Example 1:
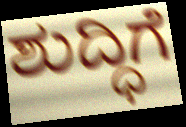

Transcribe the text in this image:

ಶುದ್ಧಿಗೆ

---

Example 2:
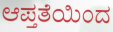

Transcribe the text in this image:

ಆಪ್ತತೆಯಿಂದ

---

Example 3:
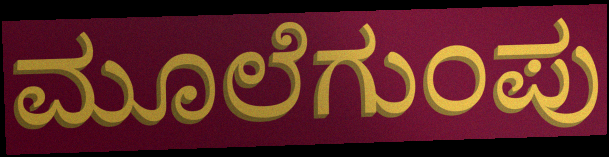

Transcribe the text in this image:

ಮೂಲೆಗುಂಪು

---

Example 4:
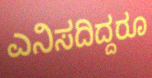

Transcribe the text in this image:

ಎನಿಸದಿದ್ದರೂ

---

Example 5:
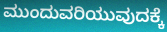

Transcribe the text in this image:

ಮುಂದುವರಿಯುವುದಕ್ಕೆ